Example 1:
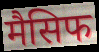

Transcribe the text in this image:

मैसिफ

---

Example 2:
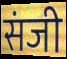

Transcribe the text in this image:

संजी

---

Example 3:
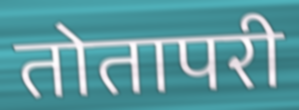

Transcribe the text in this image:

तोतापरी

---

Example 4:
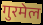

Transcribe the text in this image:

गुरमेल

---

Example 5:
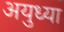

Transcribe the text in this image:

अयुध्या